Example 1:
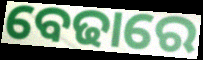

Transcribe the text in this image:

ବେଢାରେ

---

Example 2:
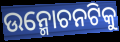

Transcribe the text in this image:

ଉନ୍ମୋଚନଟିକୁ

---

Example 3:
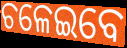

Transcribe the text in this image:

ଚଳେଇବେ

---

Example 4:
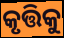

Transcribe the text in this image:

କୃତ୍ତିକୁ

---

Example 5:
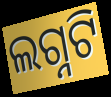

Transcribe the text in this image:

ଲଗ୍ନଟି